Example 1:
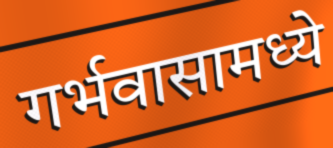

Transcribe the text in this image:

गर्भवासामध्ये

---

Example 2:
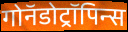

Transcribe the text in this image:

गोनॅडोट्रॉपिन्स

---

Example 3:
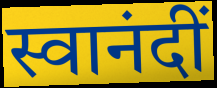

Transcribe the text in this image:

स्वानंदीं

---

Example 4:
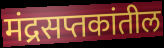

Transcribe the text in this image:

मंद्रसप्तकांतील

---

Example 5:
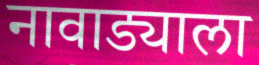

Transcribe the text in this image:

नावाड्याला